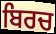
ਬਿਰਚ